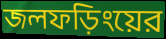
জলফড়িংয়ের